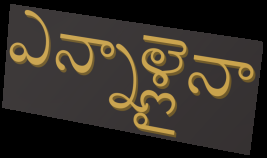
ఎన్నాళ్లైనా